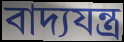
বাদ্যযন্ত্র